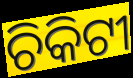
ଚିକିଟୀ